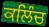
ਕਲਿੰਚ